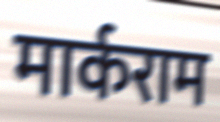
मार्कराम